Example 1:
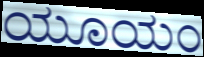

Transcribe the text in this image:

ಯೂಯಂ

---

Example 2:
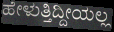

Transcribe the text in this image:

ಹೇಳುತ್ತಿದ್ದೀಯಲ್ಲ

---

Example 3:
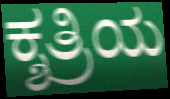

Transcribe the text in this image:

ಕ್ಶತ್ರಿಯ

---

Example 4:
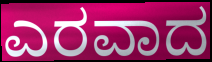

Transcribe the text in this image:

ಎರವಾದ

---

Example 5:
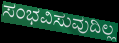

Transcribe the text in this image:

ಸಂಭವಿಸುವುದಿಲ್ಲ